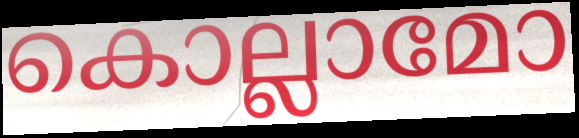
കൊല്ലാമോ